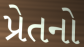
પ્રેતનો